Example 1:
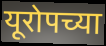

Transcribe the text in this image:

यूरोपच्या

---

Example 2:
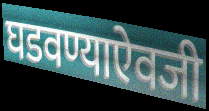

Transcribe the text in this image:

घडवण्याऐवजी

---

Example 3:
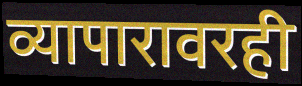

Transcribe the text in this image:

व्यापारावरही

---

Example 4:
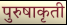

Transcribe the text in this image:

पुरुषाकृती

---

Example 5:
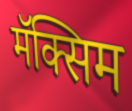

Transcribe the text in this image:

मॅक्सिम